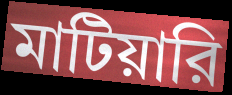
মাটিয়ারি